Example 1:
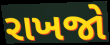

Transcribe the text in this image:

રાખજો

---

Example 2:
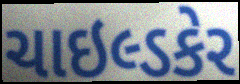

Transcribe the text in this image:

ચાઇલ્ડકેર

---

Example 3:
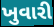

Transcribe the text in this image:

ખુવારી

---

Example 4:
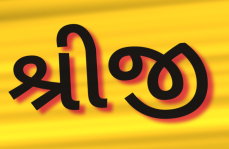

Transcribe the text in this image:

શ્રીજી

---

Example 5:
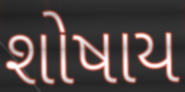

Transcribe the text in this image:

શોષાય